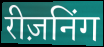
रीज़निंग